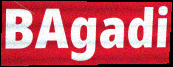
BAgadi